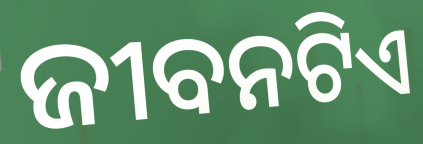
ଜୀବନଟିଏ